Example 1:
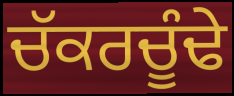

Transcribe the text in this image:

ਚੱਕਰਚੂੰਢੇ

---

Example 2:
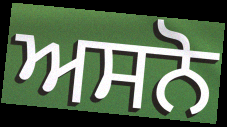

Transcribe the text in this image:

ਅਸਨੋ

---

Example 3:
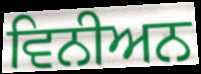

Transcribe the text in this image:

ਵਿਨੀਅਨ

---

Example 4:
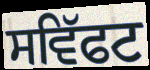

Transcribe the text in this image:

ਸਵਿੱਫਟ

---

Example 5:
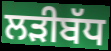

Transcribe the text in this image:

ਲੜੀਬੱਧ